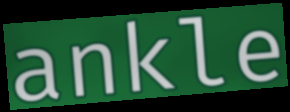
ankle